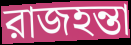
রাজহন্তা